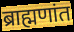
ब्राह्मणांत